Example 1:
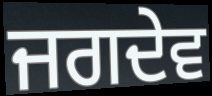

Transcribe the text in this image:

ਜਗਦੇਵ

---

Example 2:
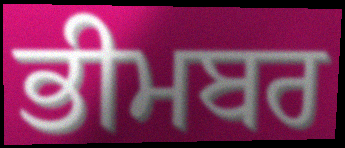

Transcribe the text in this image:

ਭੀਮਬਰ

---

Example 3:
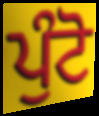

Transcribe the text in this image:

ਪੁੰਟੋ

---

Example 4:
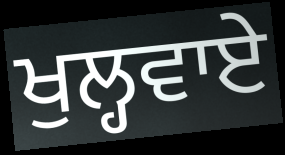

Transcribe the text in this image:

ਖੁਲ੍ਹਵਾਏ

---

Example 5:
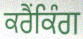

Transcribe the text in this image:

ਕਰੈਂਕਿੰਗ